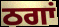
ਠਗਾਂ